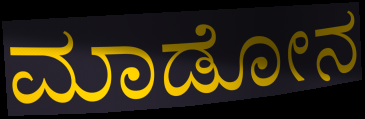
ಮಾಡೋನ